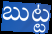
బుట్ట